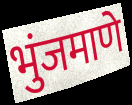
भुंजमाणे